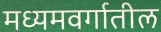
मध्यमवर्गातील